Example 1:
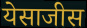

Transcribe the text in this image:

येसाजीस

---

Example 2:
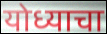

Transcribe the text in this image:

योध्याचा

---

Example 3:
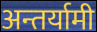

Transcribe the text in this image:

अन्तर्यामी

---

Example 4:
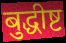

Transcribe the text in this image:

बुद्धीष्ट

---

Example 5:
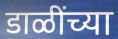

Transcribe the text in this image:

डाळींच्या